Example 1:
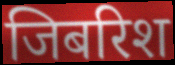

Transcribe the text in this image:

जिबरिश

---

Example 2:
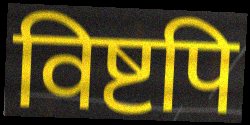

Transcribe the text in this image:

विष्टपि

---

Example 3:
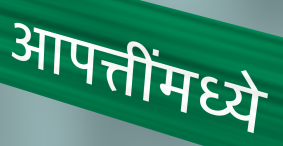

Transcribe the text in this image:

आपत्तींमध्ये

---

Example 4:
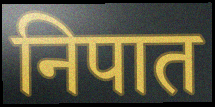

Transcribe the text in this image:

निपात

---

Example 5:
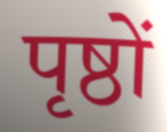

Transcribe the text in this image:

पृष्ठों